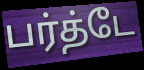
பர்த்டே